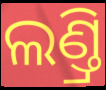
ଲଣ୍ତ୍ରି